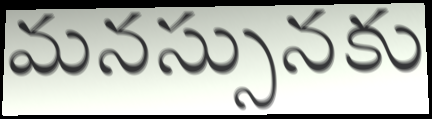
మనస్సునకు